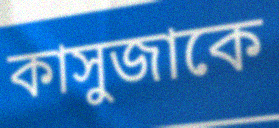
কাসুজাকে